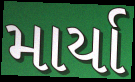
માર્યા